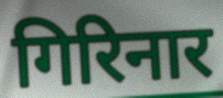
गिरिनार